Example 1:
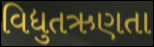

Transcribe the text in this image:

વિદ્યુતઋણતા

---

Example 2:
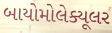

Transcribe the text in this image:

બાયોમોલેક્યૂલર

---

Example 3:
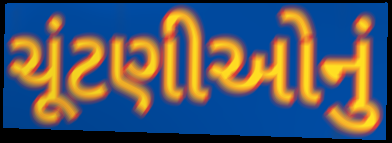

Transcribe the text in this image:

ચૂંટણીઓનું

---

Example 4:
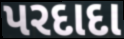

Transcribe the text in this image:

પરદાદા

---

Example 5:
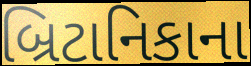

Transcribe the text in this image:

બ્રિટાનિકાના